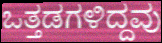
ಒತ್ತಡಗಳಿದ್ದವು